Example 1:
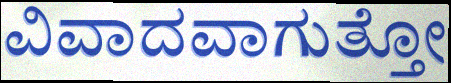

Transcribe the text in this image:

ವಿವಾದವಾಗುತ್ತೋ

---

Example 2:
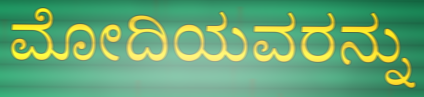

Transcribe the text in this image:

ಮೋದಿಯವರನ್ನು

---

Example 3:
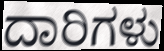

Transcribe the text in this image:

ದಾರಿಗಳು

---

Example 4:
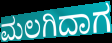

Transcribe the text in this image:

ಮಲಗಿದಾಗ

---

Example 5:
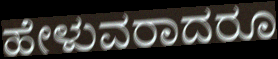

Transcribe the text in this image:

ಹೇಳುವರಾದರೂ